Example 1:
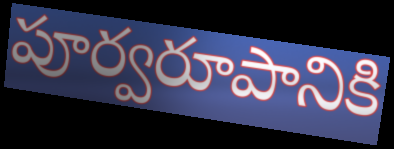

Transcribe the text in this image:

పూర్వరూపానికి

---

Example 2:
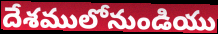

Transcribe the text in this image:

దేశములోనుండియు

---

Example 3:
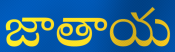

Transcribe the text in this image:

జాతాయ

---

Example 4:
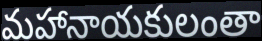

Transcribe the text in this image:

మహానాయకులంతా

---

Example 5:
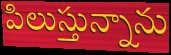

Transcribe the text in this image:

పిలుస్తున్నాను